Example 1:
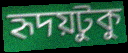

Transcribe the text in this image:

হৃদয়টুকু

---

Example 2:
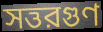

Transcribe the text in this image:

সত্তরগুণ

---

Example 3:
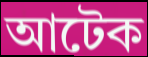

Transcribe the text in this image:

আটেক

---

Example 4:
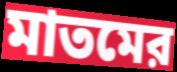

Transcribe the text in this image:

মাতমের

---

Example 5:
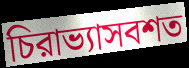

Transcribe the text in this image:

চিরাভ্যাসবশত